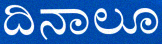
ದಿನಾಲೂ